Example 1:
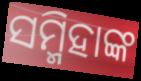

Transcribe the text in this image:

ସମ୍ମିହାଙ୍କ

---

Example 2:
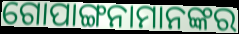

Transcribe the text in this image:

ଗୋପାଙ୍ଗନାମାନଙ୍କର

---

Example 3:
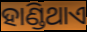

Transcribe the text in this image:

ହାଣ୍ଡିଥାଏ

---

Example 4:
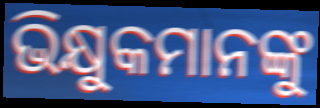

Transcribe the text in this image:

ଭିକ୍ଷୁକମାନଙ୍କୁ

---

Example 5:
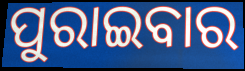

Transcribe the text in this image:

ପୁରାଇବାର